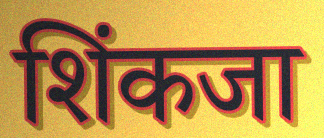
शिंकजा